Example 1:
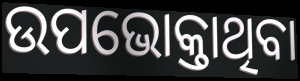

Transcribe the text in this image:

ଉପଭୋକ୍ତାଥିବା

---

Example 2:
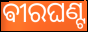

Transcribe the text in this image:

ଵୀରଘଣ୍ଟ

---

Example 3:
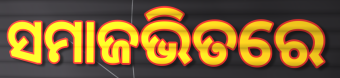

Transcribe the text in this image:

ସମାଜଭିତରେ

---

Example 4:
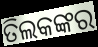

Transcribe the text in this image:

ତିଲକଙ୍କର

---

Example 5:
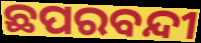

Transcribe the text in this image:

ଛପରବନ୍ଦୀ